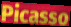
Picasso